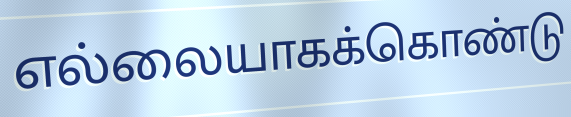
எல்லையாகக்கொண்டு